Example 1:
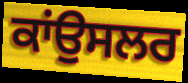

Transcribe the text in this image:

ਕਾਂਉਸਲਰ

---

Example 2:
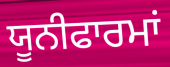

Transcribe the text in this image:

ਯੂਨੀਫਾਰਮਾਂ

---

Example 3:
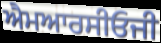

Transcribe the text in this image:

ਐਮਆਰਸੀਓਜੀ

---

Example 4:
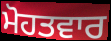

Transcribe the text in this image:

ਮੋਹਤਵਾਰ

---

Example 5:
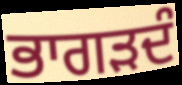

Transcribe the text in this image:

ਭਾਗੜਦੰ